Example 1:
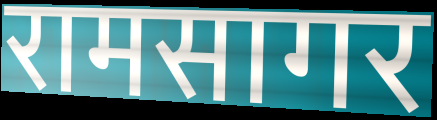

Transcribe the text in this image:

रामसागर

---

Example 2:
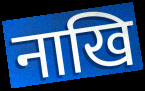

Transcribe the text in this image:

नाखि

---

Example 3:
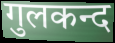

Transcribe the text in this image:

गुलकन्द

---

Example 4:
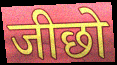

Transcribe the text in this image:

जीछो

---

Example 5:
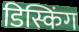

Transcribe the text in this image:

डिस्किंग